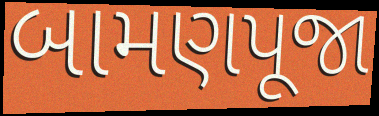
બામણપૂજા